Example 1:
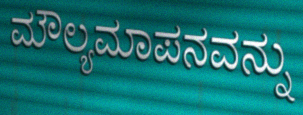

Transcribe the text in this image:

ಮೌಲ್ಯಮಾಪನವನ್ನು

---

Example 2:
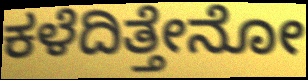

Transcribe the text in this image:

ಕಳೆದಿತ್ತೇನೋ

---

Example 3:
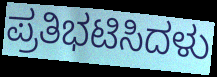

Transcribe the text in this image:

ಪ್ರತಿಭಟಿಸಿದಳು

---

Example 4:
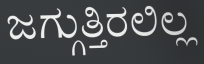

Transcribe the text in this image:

ಜಗ್ಗುತ್ತಿರಲಿಲ್ಲ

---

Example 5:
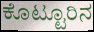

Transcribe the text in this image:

ಕೊಟ್ಟೂರಿನ